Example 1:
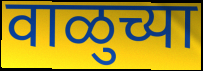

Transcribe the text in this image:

वाळुच्या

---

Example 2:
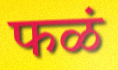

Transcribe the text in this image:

फळं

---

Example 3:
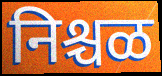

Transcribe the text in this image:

निश्चळ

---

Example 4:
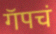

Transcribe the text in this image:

गॅपचं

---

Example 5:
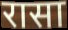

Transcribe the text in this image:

रासा